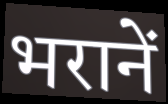
भरानें